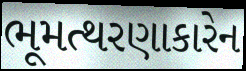
ભૂમત્થરણાકારેન